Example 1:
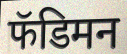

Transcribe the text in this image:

फॅडिमन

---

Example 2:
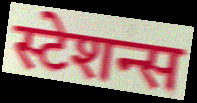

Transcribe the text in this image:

स्टेशन्स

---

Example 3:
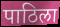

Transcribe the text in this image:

पाठिला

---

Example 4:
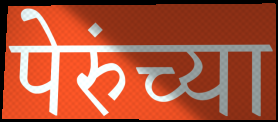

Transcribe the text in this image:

पेरुंच्या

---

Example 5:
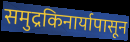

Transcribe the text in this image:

समुद्रकिनार्यापासून